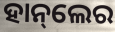
ହାନ୍‌ଲେର